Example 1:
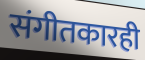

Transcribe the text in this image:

संगीतकारही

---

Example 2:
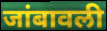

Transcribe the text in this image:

जांबावली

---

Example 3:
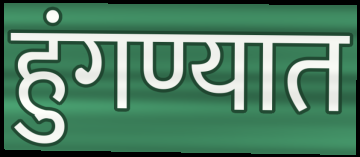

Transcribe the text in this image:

हुंगण्यात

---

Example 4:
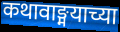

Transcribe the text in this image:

कथावाङ्मयाच्या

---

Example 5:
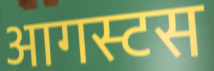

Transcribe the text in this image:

आगस्टस